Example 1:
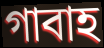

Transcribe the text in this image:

গাবাহ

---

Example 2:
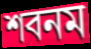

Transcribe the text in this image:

শবনম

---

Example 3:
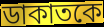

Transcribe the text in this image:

ডাকাতকে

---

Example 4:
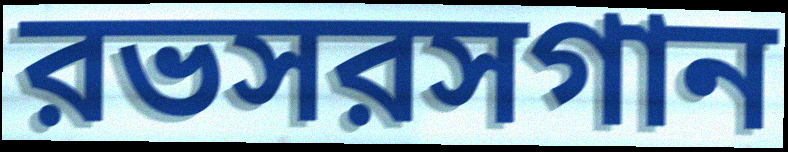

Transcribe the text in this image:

রভসরসগান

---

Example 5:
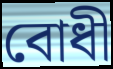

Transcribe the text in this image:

বোধী